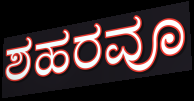
ಶಹರವೂ